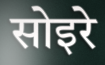
सोइरे